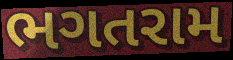
ભગતરામ